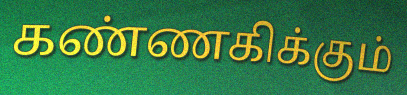
கண்ணகிக்கும்